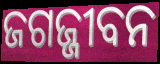
ଜଗଜ୍ଜୀବନ